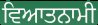
ਵਿਆਤਨਾਮੀ